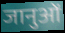
जानुओं